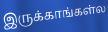
இருக்காங்கள்ல